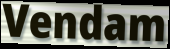
Vendam